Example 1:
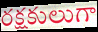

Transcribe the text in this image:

రక్షకులుగా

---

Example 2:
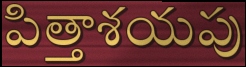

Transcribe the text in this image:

పిత్తాశయపు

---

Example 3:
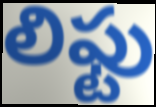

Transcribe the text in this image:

లిఫ్టు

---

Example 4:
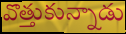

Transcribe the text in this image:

వొత్తుకున్నాడు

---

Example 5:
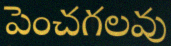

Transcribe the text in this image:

పెంచగలవు